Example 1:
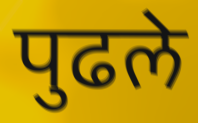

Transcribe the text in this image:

पुढले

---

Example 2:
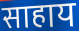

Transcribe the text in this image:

साहाय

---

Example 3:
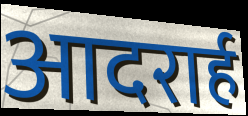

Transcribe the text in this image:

आदरार्ह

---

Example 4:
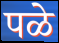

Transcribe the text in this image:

पळे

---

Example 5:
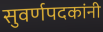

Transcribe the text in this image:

सुवर्णपदकांनी